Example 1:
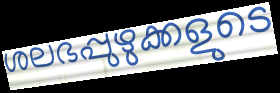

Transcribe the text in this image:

ശലഭപ്പുഴുക്കളുടെ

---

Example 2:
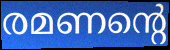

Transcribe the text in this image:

രമണന്റെ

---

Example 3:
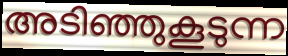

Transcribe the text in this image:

അടിഞ്ഞുകൂടുന്ന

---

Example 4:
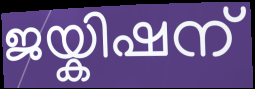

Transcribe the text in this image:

ജയ്കിഷന്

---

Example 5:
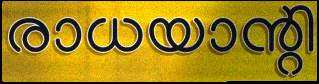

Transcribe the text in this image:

രാധയാന്റി